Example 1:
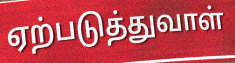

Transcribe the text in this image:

ஏற்படுத்துவாள்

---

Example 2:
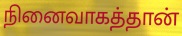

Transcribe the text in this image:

நினைவாகத்தான்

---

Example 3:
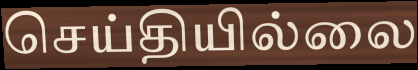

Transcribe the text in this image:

செய்தியில்லை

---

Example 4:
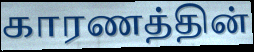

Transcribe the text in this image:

காரணத்தின்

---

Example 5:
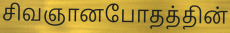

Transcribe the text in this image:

சிவஞானபோதத்தின்